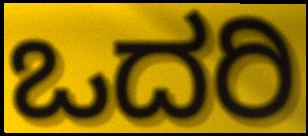
ಒದರಿ